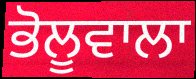
ਭੋਲੂਵਾਲਾ